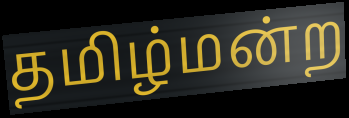
தமிழ்மன்ற